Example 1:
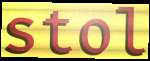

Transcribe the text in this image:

stol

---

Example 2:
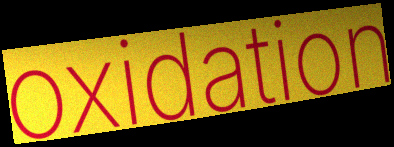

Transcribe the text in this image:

oxidation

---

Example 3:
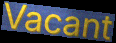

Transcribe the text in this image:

Vacant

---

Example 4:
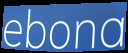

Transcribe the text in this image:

ebona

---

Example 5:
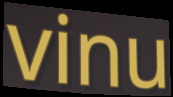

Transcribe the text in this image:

vinu